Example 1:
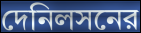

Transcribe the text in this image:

দেনিলসনের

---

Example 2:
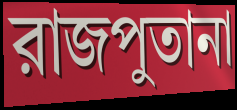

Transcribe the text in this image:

রাজপুতানা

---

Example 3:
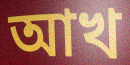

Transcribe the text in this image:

আখ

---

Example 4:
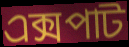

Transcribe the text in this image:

এক্সপাট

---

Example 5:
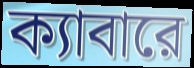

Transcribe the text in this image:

ক্যাবারে